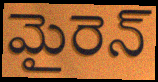
మైరెన్